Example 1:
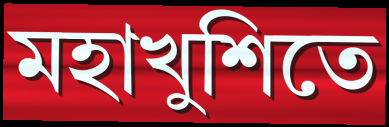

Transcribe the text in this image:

মহাখুশিতে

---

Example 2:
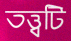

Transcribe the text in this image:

তত্ত্বটি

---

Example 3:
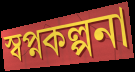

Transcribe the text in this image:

স্বপ্নকল্পনা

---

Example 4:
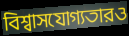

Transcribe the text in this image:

বিশ্বাসযোগ্যতারও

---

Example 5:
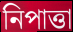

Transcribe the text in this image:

নিপাত্তা